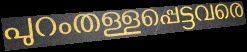
പുറംതള്ളപ്പെട്ടവരെ